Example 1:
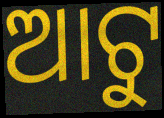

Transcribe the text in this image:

ଆଟୁ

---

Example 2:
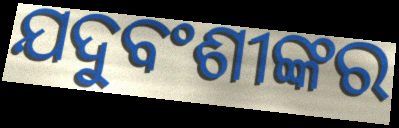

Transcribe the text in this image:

ଯଦୁବଂଶୀଙ୍କର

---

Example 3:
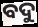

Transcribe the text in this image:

ବଦୁ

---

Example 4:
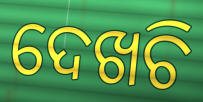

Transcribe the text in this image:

ଦେଖଚି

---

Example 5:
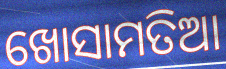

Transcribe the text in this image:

ଖୋସାମତିଆ